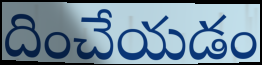
దించేయడం